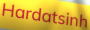
Hardatsinh